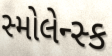
સ્મોલેન્સ્ક